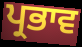
ਪ੍ਰਭਾਵ